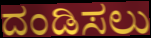
ದಂಡಿಸಲು